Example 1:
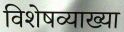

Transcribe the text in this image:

विशेषव्याख्या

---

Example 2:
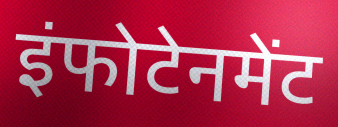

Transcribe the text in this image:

इंफोटेनमेंट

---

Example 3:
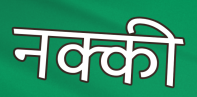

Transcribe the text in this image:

नक्की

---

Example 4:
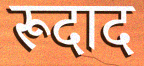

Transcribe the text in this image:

रूदाद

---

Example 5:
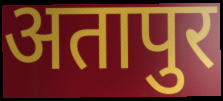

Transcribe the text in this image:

अतापुर